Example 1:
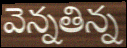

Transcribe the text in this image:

వెన్నతిన్న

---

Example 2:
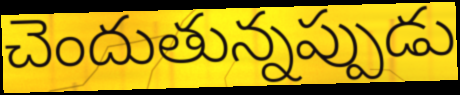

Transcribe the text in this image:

చెందుతున్నప్పుడు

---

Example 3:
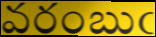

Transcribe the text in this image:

వరంబుఁ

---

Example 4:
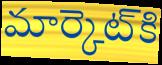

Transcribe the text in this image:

మార్కెట్‌కి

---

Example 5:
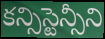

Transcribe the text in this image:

కన్సిస్టెన్సీని